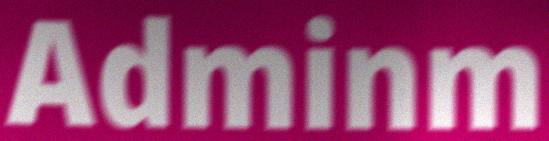
Adminm